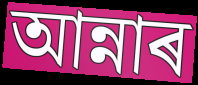
আন্নাৰ